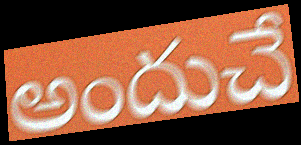
అందుచే